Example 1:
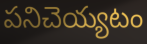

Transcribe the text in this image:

పనిచెయ్యటం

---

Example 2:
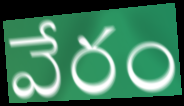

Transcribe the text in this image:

వేరం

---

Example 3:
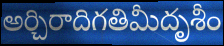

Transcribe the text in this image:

అర్చిరాదిగతిమీదృశీం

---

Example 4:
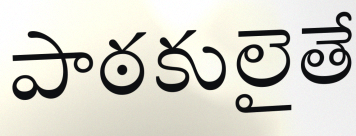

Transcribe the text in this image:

పాఠకులైతే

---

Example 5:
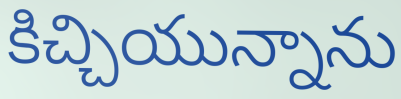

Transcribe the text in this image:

కిచ్చియున్నాను